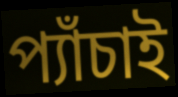
প্যাঁচাই